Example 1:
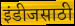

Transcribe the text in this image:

इंडीजसाठी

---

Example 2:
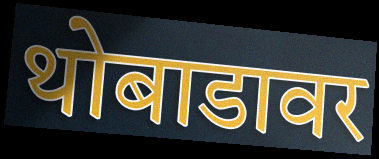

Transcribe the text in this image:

थोबाडावर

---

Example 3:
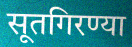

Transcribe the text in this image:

सूतगिरण्या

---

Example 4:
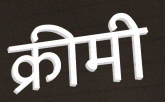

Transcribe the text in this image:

क्रीमी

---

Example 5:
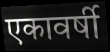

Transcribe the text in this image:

एकावर्षी